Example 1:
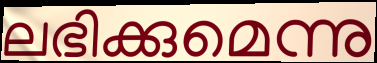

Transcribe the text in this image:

ലഭിക്കുമെന്നു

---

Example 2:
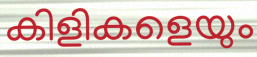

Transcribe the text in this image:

കിളികളെയും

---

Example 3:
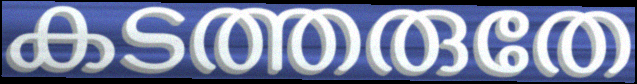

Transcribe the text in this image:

കടത്തരുതേ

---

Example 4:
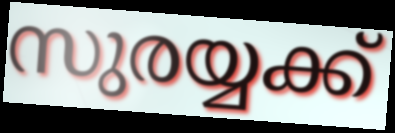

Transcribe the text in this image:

സുരയ്യക്ക്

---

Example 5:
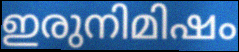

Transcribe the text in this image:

ഇരുനിമിഷം